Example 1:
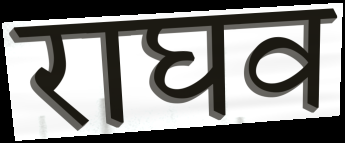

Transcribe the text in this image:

राघव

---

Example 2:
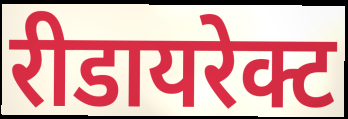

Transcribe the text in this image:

रीडायरेक्ट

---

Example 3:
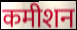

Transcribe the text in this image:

कमीशन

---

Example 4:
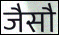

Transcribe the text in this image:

जैसौ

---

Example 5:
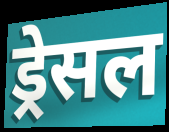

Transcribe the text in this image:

ड्रेसल